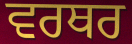
ਵਰਥਰ